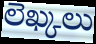
లెఖ్కలు